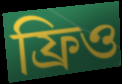
ফ্রিও